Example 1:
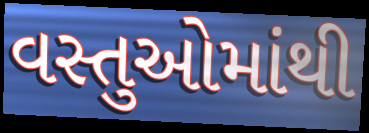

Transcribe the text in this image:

વસ્તુઓમાંથી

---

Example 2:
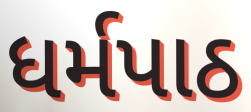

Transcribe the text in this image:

ધર્મપાઠ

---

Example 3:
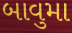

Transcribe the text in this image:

બાવુમા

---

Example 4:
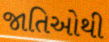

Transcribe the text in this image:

જાતિઓથી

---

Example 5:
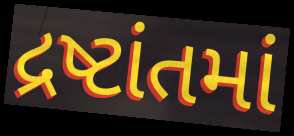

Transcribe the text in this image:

દ્રષ્ટાંતમાં